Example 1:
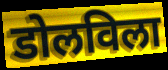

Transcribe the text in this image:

डोलविला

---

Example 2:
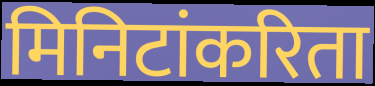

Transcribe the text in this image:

मिनिटांकरिता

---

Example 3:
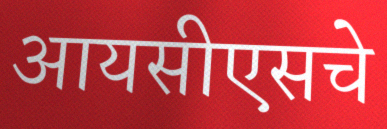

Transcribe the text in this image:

आयसीएसचे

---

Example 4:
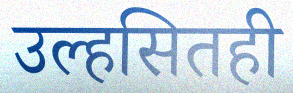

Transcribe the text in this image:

उल्हसितही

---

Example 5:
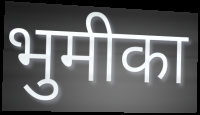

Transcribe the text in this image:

भुमीका